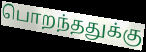
பொறந்ததுக்கு